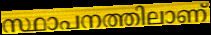
സ്ഥാപനത്തിലാണ്